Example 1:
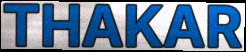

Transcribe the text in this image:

THAKAR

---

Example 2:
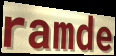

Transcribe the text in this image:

ramde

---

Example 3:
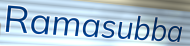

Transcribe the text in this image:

Ramasubba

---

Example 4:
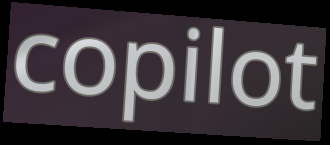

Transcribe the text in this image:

copilot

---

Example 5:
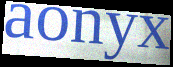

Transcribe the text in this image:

aonyx